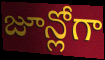
జూన్లోగా